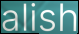
alish